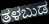
ತಳಬುಡ